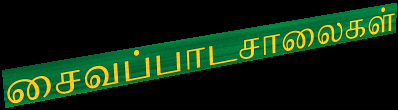
சைவப்பாடசாலைகள்